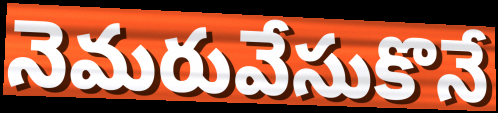
నెమరువేసుకొనే